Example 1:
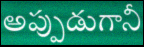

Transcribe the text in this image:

అప్పుడుగానీ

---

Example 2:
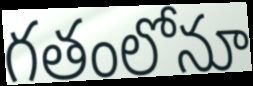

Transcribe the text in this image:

గతంలోనూ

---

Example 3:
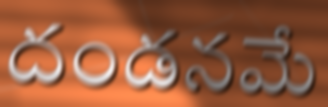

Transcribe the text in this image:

దండనమే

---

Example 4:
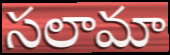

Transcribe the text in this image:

సలామా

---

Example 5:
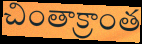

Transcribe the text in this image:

చింతాక్రాంత